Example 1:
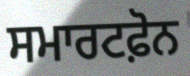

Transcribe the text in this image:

ਸਮਾਰਟਫ਼ੋਨ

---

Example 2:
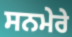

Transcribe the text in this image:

ਸਨਮੇਰੇ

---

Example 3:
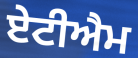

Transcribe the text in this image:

ਏਟੀਐਮ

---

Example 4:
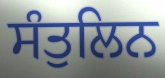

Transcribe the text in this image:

ਸੰਤੁਲਿਨ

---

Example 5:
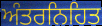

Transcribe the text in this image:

ਅੰਤਰਨਿਹਿਤ